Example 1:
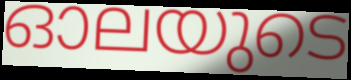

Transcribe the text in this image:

ഓലയുടെ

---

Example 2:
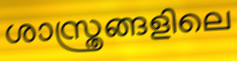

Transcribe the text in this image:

ശാസ്ത്രങ്ങളിലെ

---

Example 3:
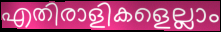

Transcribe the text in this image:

എതിരാളികളെല്ലാം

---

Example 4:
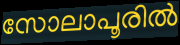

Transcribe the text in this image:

സോലാപൂരിൽ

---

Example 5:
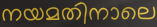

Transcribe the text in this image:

നയമതിനാലെ